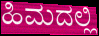
ಹಿಮದಲ್ಲಿ